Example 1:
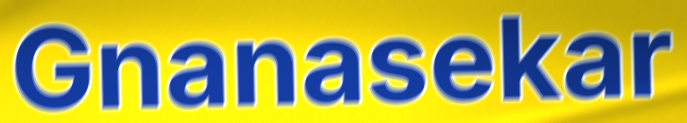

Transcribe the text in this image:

Gnanasekar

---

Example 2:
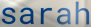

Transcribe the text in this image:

sarah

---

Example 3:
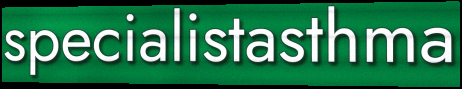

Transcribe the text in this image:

specialistasthma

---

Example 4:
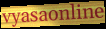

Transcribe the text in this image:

vyasaonline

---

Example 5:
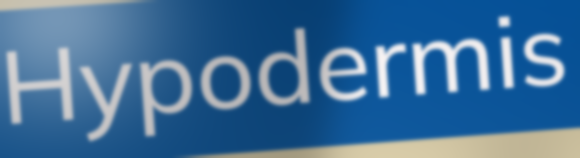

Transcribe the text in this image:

Hypodermis